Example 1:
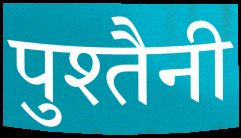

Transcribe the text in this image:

पुश्तैनी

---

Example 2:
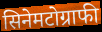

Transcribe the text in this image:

सिनेमटोग्राफी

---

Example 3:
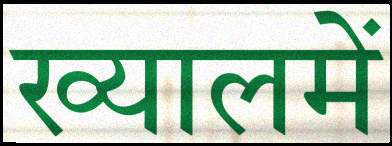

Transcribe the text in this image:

ख्यालमें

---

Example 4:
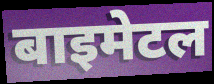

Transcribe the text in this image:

बाइमेटल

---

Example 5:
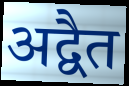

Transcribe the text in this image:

अद्वैत